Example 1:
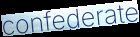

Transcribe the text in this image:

confederate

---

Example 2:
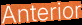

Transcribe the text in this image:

Anterior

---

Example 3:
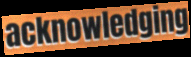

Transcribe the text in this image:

acknowledging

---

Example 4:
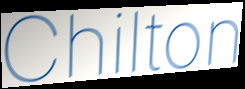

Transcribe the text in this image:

Chilton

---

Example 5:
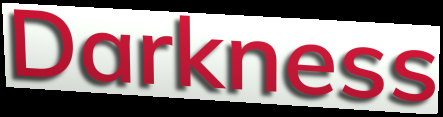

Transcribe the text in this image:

Darkness